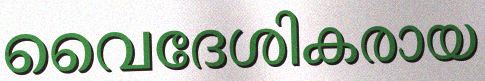
വൈദേശികരായ